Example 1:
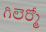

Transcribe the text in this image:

గిలెర్మో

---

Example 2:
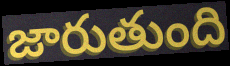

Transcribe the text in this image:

జారుతుంది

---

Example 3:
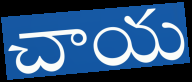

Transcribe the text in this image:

చాయ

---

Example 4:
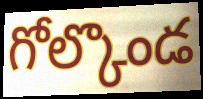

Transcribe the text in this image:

గోల్కొండ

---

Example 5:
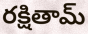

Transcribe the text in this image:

రక్షితామ్